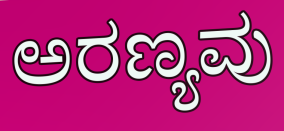
ಅರಣ್ಯವು